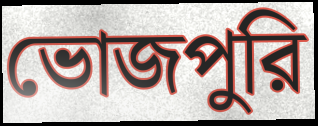
ভোজপুরি